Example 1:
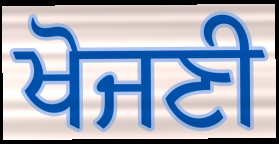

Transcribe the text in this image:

ਖੋਜਣੀ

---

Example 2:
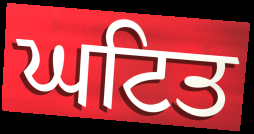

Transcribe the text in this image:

ਘਟਿਤ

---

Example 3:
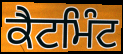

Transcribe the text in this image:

ਕੈਟਮਿੰਟ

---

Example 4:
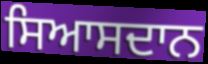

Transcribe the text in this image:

ਸਿਆਸਦਾਨ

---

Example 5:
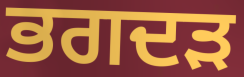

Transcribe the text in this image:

ਭਗਦੜ